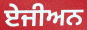
ਏਜੀਅਨ